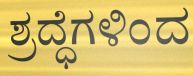
ಶ್ರದ್ಧೆಗಳಿಂದ